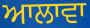
ਆਲਾਵਾ